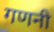
गणनी